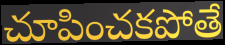
చూపించకపోతే